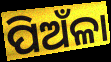
ପିଅଁଳା